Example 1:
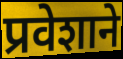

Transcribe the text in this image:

प्रवेशाने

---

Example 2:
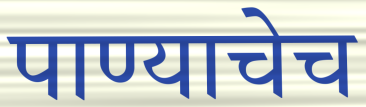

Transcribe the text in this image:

पाण्याचेच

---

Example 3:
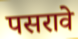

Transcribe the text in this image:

पसरावे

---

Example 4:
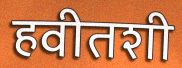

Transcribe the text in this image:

हवीतशी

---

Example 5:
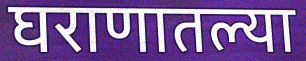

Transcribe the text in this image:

घराणातल्या